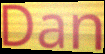
Dan